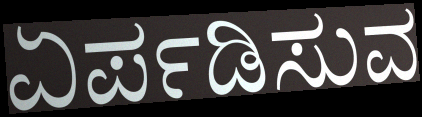
ಏರ್ಪಡಿಸುವ